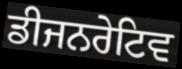
ਡੀਜਨਰੇਟਿਵ